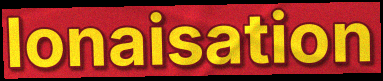
Ionaisation